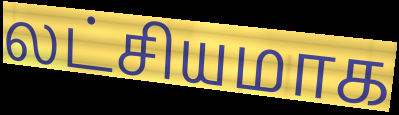
லட்சியமாக